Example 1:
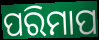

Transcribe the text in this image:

ପରିମାପ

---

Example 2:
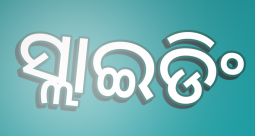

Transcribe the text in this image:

ସ୍ଲାଇଡିଂ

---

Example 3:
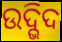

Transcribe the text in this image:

ଉଦ୍ଭିଦ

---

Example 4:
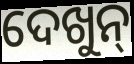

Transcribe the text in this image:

ଦେଖୁନ୍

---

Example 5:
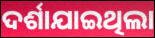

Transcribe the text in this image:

ଦର୍ଶାଯାଇଥିଲା